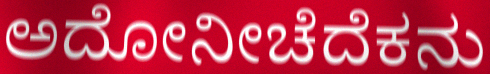
ಅದೋನೀಚೆದೆಕನು